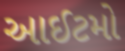
આઈટમો